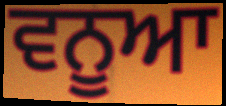
ਵਨੂਆ